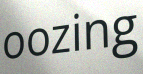
oozing